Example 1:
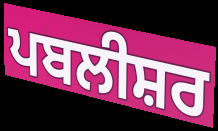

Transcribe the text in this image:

ਪਬਲੀਸ਼ਰ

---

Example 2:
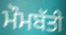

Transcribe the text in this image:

ਮੌਮਬੱਤੀ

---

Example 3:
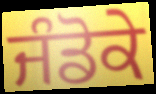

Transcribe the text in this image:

ਜੰਡੋਕੇ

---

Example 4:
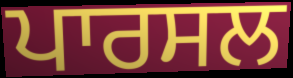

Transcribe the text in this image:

ਪਾਰਸਲ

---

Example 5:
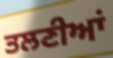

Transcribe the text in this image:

ਤਲਣੀਆਂ